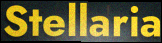
Stellaria